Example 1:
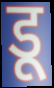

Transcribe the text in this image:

डू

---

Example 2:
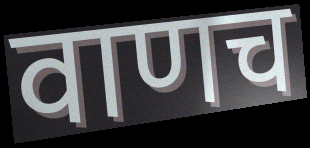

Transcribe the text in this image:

वाणच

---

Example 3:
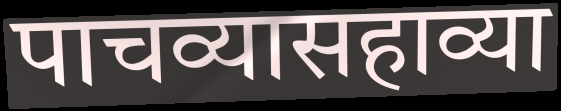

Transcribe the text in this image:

पाचव्यासहाव्या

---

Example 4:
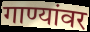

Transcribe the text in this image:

गाण्यांवर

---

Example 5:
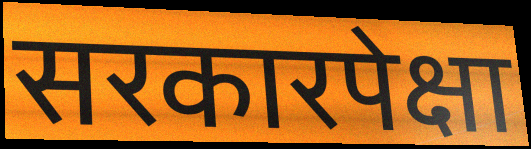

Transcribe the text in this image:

सरकारपेक्षा